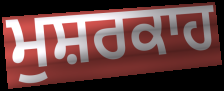
ਮੁਸ਼ਰਕਾਹ